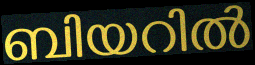
ബിയറിൽ